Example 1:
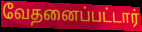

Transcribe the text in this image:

வேதனைப்பட்டார்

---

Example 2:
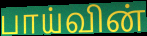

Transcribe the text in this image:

பாய்வின்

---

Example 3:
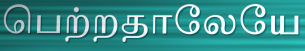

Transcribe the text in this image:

பெற்றதாலேயே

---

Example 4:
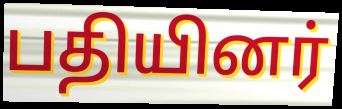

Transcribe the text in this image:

பதியினர்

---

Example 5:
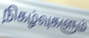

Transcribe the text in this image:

நிகழ்வுகளும்